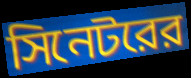
সিনেটরের